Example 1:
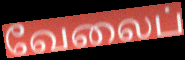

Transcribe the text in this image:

வேலைப்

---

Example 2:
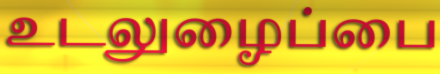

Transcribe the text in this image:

உடலுழைப்பை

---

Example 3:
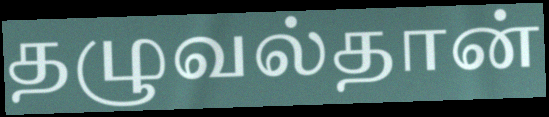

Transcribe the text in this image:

தழுவல்தான்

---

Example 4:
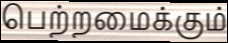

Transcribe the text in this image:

பெற்றமைக்கும்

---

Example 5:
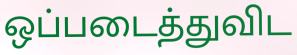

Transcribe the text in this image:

ஒப்படைத்துவிட